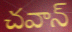
చవాన్